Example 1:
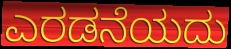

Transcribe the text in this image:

ಎರಡನೆಯದು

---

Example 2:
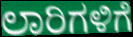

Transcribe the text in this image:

ಲಾರಿಗಳಿಗೆ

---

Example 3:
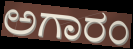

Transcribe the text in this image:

ಅಗಾರಂ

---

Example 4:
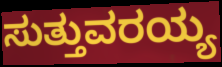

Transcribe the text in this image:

ಸುತ್ತುವರಯ್ಯ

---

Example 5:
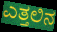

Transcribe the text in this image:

ಎತ್ತಲಿನ